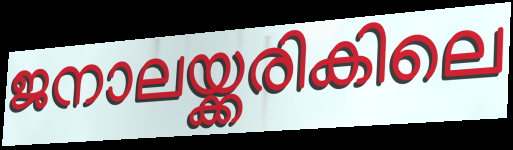
ജനാലയ്ക്കരികിലെ